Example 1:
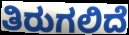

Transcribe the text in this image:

ತಿರುಗಲಿದೆ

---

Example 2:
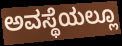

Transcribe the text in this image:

ಅವಸ್ಥೆಯಲ್ಲೂ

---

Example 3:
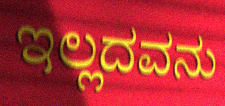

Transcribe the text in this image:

ಇಲ್ಲದವನು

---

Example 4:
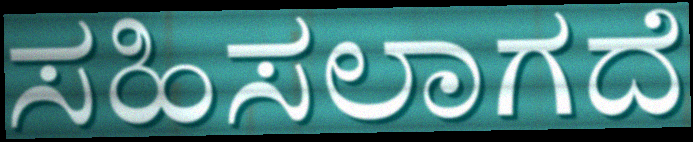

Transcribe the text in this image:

ಸಹಿಸಲಾಗದೆ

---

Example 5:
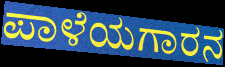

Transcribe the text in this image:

ಪಾಳೆಯಗಾರನ